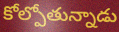
కోల్పోతున్నాడు